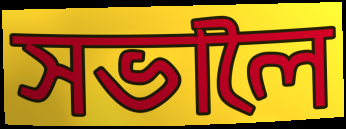
সভালৈ